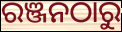
ରଞ୍ଜନଠାରୁ